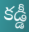
కడ్డీ